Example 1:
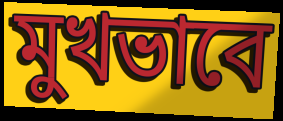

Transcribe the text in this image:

মুখভাবে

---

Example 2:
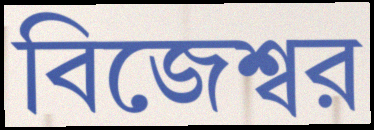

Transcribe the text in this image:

বিজেশ্বর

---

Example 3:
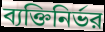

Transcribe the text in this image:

ব্যক্তিনির্ভর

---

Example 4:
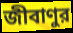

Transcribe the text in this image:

জীবাণুর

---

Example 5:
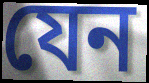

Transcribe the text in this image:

যেন